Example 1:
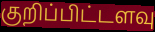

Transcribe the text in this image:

குறிப்பிட்டளவு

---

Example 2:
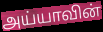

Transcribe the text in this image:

அய்யாவின்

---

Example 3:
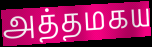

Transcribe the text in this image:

அத்தமகய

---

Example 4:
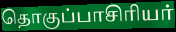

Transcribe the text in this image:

தொகுப்பாசிரியர்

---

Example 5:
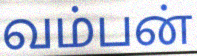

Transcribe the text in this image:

வம்பன்